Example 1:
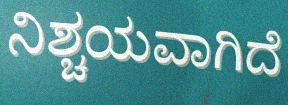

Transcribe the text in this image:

ನಿಶ್ಚಯವಾಗಿದೆ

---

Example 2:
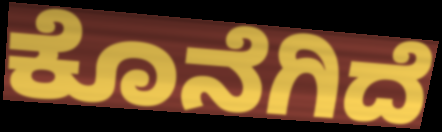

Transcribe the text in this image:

ಕೊನೆಗಿದೆ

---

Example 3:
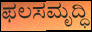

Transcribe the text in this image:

ಫಲಸಮೃದ್ಧಿ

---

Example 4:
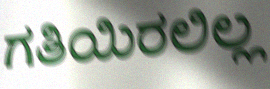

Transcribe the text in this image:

ಗತಿಯಿರಲಿಲ್ಲ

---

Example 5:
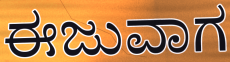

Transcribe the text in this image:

ಈಜುವಾಗ